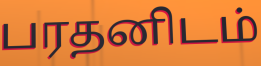
பரதனிடம்